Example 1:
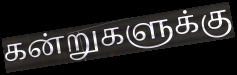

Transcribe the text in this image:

கன்றுகளுக்கு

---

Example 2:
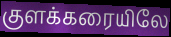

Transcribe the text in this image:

குளக்கரையிலே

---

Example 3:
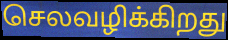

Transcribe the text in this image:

செலவழிக்கிறது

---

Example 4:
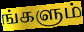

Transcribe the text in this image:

ங்களும்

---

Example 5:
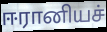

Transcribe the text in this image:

ஈரானியச்